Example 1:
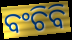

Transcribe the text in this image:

ବଂଚିବି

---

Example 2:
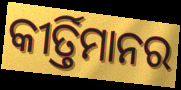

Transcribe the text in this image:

କୀର୍ତ୍ତିମାନର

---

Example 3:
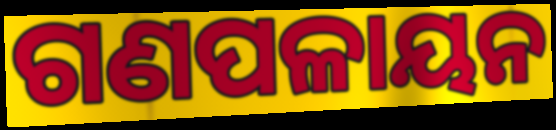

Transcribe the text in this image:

ଗଣପଳାୟନ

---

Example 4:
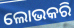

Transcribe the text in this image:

ଲୋଭକରି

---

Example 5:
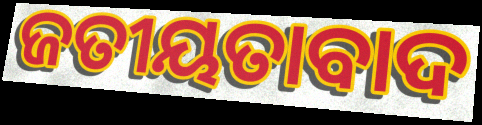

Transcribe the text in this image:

ଜତୀୟତାବାଦ